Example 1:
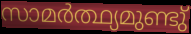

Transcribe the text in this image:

സാമർത്ഥ്യമുണ്ടു്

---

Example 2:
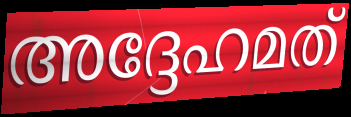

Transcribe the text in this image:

അദ്ദേഹമത്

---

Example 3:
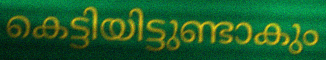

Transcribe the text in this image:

കെട്ടിയിട്ടുണ്ടാകും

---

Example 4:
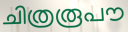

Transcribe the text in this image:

ചിത്രരൂപൗ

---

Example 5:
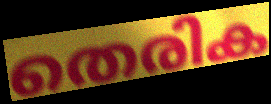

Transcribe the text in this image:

തെരിക